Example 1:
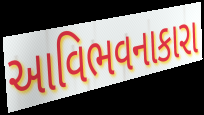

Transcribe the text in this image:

આવિભવનાકારા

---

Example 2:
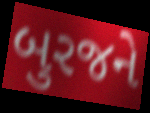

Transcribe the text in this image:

બુરજને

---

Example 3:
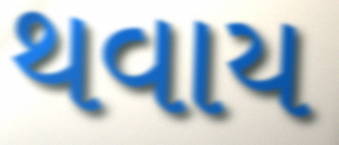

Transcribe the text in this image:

થવાય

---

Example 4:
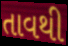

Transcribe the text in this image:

તાવથી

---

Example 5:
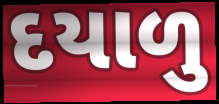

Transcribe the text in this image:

દયાળુ